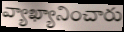
వ్యాఖ్యానించారు